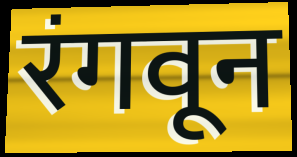
रंगवून